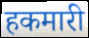
हकमारी